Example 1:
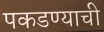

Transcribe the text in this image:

पकडण्याची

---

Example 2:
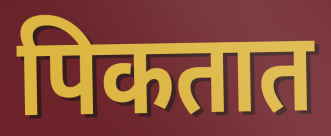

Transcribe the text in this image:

पिकतात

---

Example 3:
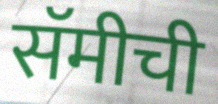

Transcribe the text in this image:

सॅमीची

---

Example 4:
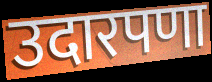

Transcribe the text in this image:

उदारपणा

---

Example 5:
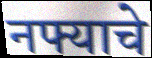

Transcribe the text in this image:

नफ्याचे